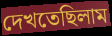
দেখতেছিলাম